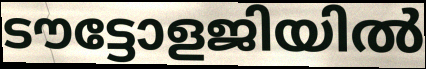
ടൗട്ടോളജിയിൽ